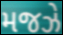
મજઝે